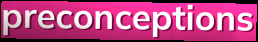
preconceptions